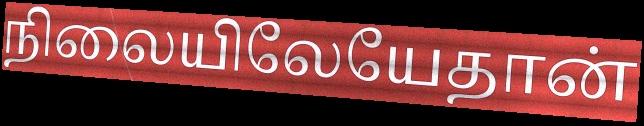
நிலையிலேயேதான்